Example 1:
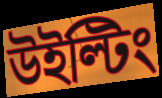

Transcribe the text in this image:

উইল্টিং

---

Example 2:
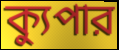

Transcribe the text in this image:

ক্যুপার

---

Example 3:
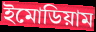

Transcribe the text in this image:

ইমোডিয়াম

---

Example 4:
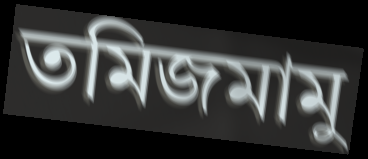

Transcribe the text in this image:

তমিজমামু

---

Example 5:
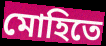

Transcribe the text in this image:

মোহিতে